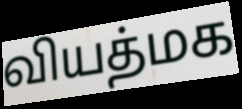
வியத்மக